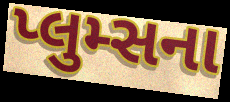
પ્લુમ્સના